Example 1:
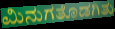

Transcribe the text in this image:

ಮಿನುಗತೊಡಗಿತು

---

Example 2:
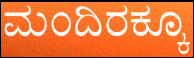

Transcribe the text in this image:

ಮಂದಿರಕ್ಕೂ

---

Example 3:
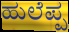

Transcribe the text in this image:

ಹುಲೆಪ್ಪ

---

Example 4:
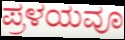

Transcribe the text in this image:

ಪ್ರಳಯವೂ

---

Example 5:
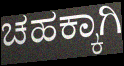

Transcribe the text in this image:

ಚಹಕ್ಕಾಗಿ